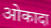
ओकादा